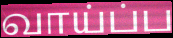
வாய்ப்ப